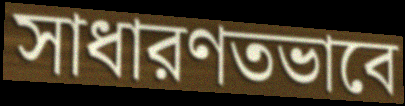
সাধারণতভাবে